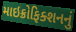
માઇક્રોફિક્શનનું